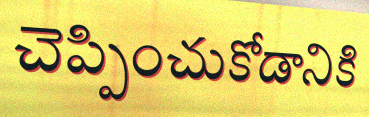
చెప్పించుకోడానికి